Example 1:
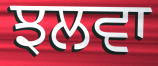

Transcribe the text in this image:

ਝਲਵਾ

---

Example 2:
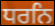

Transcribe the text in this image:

ਧਰਨਿ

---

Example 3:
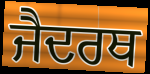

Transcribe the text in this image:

ਜੈਦਰਥ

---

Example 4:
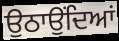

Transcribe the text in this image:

ਉਠਾਉਂਦਿਆਂ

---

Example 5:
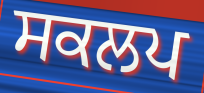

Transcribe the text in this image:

ਸਕਲਪ